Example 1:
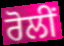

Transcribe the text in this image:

ਰੋਲੀਂ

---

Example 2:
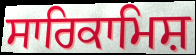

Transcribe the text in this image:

ਸਾਰਿਕਾਮਿਸ਼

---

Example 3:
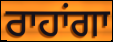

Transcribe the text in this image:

ਰਾਹਾਂਗਾ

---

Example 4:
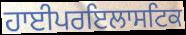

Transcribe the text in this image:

ਹਾਈਪਰਇਲਾਸਟਿਕ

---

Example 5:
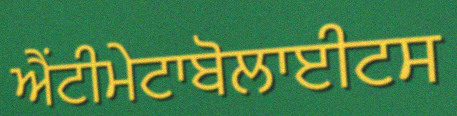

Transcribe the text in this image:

ਐਂਟੀਮੇਟਾਬੋਲਾਈਟਸ